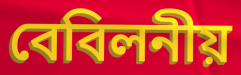
বেবিলনীয়